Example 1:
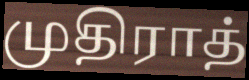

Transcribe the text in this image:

முதிராத்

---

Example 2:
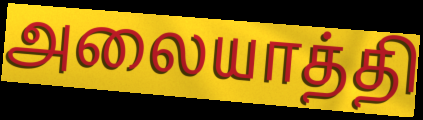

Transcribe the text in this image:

அலையாத்தி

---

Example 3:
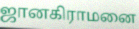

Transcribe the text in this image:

ஜானகிராமனை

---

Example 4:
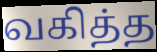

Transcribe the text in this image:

வகித்த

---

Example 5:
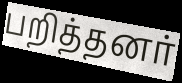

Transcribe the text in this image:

பறித்தனர்